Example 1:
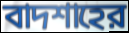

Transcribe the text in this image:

বাদশাহের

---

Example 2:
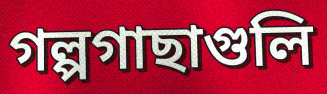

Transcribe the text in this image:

গল্পগাছাগুলি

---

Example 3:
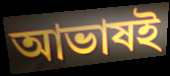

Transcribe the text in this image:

আভাষই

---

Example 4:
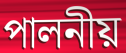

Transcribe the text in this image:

পালনীয়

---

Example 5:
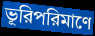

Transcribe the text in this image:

ভূরিপরিমাণে